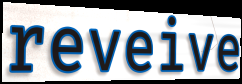
reveive